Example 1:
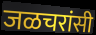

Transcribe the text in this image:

जळचरांसी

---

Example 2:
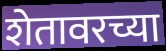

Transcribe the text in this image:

शेतावरच्या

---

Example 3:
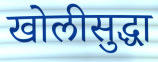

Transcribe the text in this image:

खोलीसुद्धा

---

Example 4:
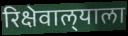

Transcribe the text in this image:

रिक्षेवाल्याला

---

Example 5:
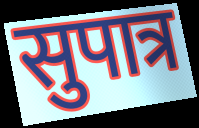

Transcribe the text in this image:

सुपात्र